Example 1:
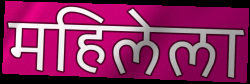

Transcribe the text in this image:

महिलेला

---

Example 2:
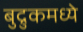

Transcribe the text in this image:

बुद्रुकमध्ये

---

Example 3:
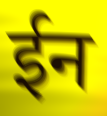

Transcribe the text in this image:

ईन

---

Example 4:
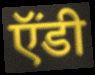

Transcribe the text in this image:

ऍंडी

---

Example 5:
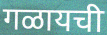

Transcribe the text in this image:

गळायची